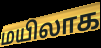
மயிலாக